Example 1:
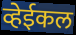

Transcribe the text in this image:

व्हेईकल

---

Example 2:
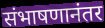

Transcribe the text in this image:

संभाषणानंतर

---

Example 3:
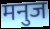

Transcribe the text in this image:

मनुज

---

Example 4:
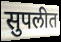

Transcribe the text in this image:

सुपलीत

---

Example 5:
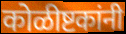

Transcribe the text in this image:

कोळीष्टकांनी